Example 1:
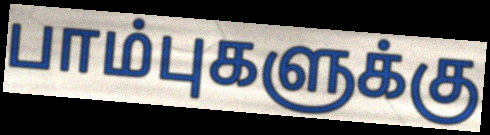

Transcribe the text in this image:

பாம்புகளுக்கு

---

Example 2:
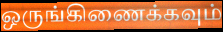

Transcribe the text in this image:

ஒருங்கிணைக்கவும்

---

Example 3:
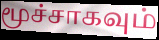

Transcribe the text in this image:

மூச்சாகவும்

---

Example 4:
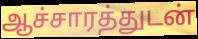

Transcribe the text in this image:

ஆச்சாரத்துடன்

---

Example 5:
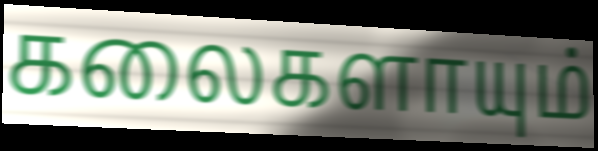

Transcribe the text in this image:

கலைகளாயும்